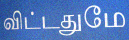
விட்டதுமே